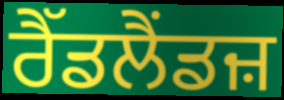
ਰੈੱਡਲੈਂਡਜ਼